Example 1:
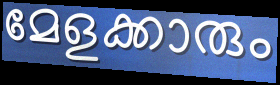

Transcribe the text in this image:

മേളക്കാരും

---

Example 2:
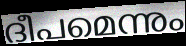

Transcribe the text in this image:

ദീപമെന്നും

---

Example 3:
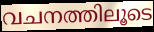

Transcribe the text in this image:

വചനത്തിലൂടെ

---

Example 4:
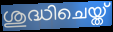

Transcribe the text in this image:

ശുദ്ധിചെയ്ത്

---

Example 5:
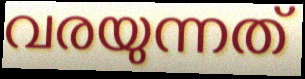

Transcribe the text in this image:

വരയുന്നത്